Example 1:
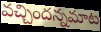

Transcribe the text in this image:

వచ్చిందన్నమాట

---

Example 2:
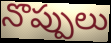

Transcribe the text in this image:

నొప్పులు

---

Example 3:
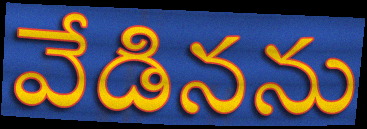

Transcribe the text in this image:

వేడినను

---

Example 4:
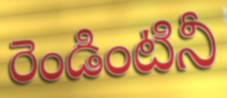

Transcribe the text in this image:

రెండింటినీ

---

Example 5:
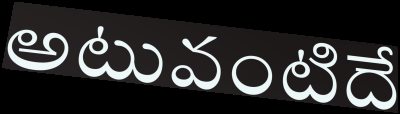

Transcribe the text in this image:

అటువంటిదే